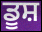
ਡੂਸ਼